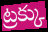
ట్రక్కు